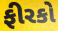
ફીરકો